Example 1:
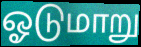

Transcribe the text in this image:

ஓடுமாறு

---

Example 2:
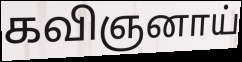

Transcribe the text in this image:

கவிஞனாய்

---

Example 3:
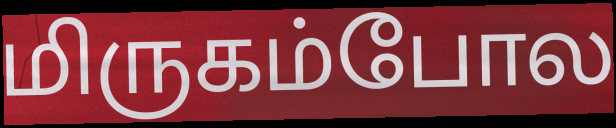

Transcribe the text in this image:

மிருகம்போல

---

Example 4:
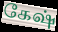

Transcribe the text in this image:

கேஷ்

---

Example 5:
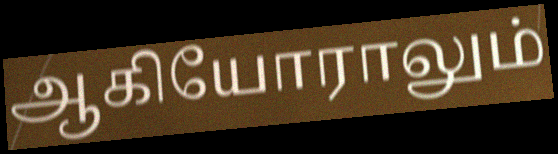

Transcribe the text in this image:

ஆகியோராலும்